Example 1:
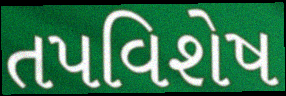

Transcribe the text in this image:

તપવિશેષ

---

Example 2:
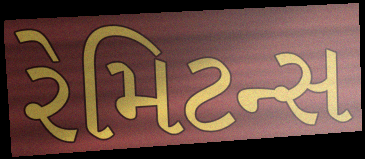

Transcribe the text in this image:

રેમિટન્સ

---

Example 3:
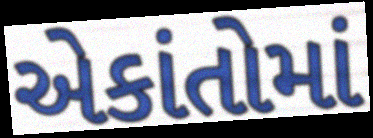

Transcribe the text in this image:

એકાંતોમાં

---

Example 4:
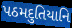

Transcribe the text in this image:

પઠમદુતિયાનિ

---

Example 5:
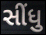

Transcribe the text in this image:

સીંધુ